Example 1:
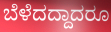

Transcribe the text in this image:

ಬೆಳೆದದ್ದಾದರೂ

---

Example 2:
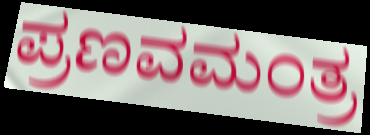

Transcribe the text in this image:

ಪ್ರಣವಮಂತ್ರ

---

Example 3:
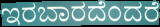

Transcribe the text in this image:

ಇರಬಾರದೆಂದರೆ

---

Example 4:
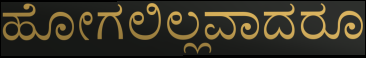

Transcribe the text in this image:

ಹೋಗಲಿಲ್ಲವಾದರೂ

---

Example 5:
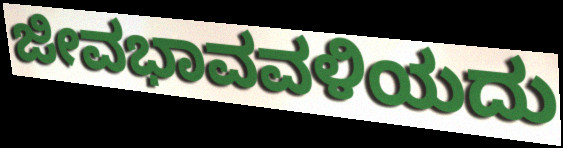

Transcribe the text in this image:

ಜೀವಭಾವವಳಿಯದು